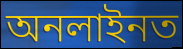
অনলাইনত